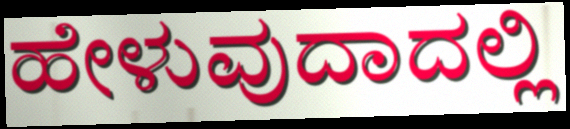
ಹೇಳುವುದಾದಲ್ಲಿ